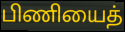
பிணியைத்